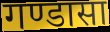
गण्डासा